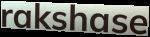
rakshase